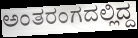
ಅಂತರಂಗದಲ್ಲಿದ್ದ